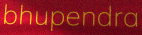
bhupendra